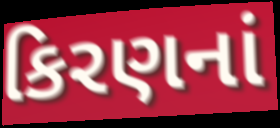
કિરણનાં